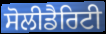
ਸੋਲੀਡੈਰਿਟੀ